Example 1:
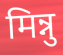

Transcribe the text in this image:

मिन्नु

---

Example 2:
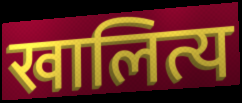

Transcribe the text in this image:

खालित्य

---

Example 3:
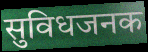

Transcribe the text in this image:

सुविधजनक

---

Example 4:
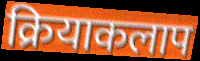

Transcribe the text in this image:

क्रियाकलाप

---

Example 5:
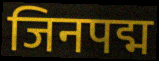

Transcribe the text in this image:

जिनपद्म